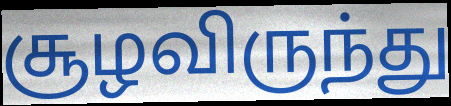
சூழவிருந்து